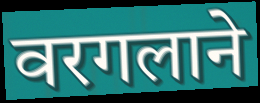
वरगलाने